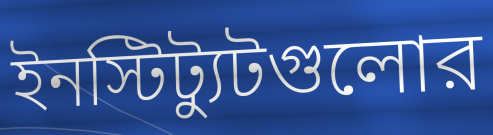
ইনস্টিট্যুটগুলোর